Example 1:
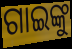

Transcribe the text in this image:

ଗାଇଙ୍କୁ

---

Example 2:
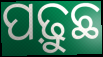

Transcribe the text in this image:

ପଢ଼ୁଛ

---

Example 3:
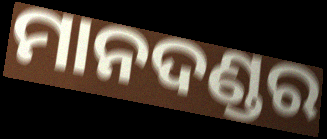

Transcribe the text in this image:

ମାନଦଣ୍ଡର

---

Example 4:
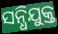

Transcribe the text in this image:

ସନ୍ଧିଯୁକ୍ତ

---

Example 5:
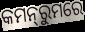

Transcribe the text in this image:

କମନ୍‌ରୁମରେ